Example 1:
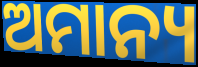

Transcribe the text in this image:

ଅମାନ୍ୟ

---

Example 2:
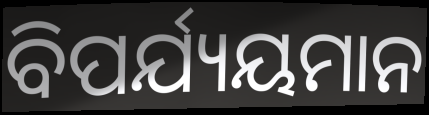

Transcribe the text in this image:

ବିପର୍ଯ୍ୟୟମାନ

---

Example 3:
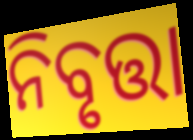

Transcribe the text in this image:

ନିବୃତ୍ତା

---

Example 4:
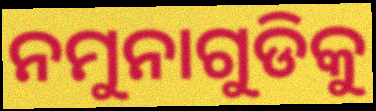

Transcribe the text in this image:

ନମୁନାଗୁଡିକୁ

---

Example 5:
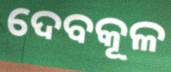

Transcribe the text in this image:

ଦେବକୂଳ